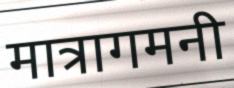
मात्रागमनी